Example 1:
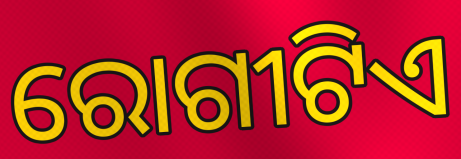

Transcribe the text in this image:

ରୋଗୀଟିଏ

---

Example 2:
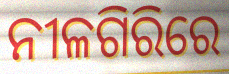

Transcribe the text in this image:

ନୀଳଗିରିରେ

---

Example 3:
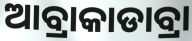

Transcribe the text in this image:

ଆବ୍ରାକାଡାବ୍ରା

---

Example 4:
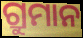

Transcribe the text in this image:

ଗ୍ରୁମାନ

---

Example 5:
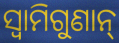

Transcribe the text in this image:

ସ୍ୱାମିଗୁଣାନ୍